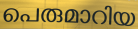
പെരുമാറിയ